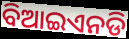
ବିଆଇଏନଡି